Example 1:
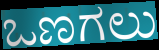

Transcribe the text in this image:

ಒಣಗಲು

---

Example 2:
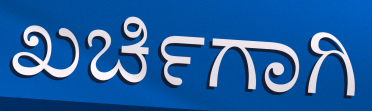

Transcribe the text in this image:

ಖರ್ಚಿಗಾಗಿ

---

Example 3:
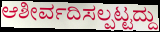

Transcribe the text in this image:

ಆಶೀರ್ವದಿಸಲ್ಪಟ್ಟದ್ದು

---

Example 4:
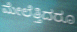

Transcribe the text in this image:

ಮೇಲೆತ್ತಿದರೂ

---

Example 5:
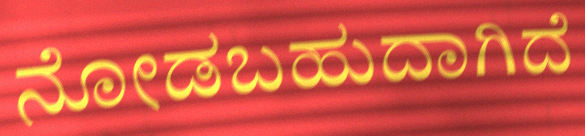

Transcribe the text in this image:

ನೋಡಬಹುದಾಗಿದೆ